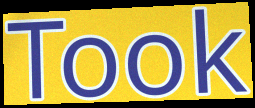
Took